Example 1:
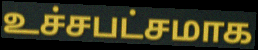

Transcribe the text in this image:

உச்சபட்சமாக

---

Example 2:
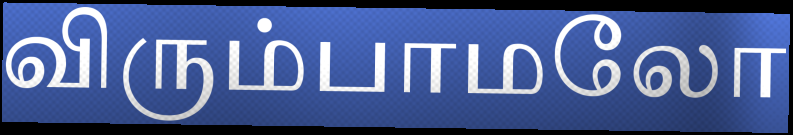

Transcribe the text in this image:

விரும்பாமலோ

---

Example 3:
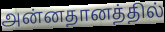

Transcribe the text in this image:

அன்னதானத்தில்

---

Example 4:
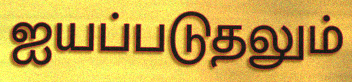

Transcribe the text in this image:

ஐயப்படுதலும்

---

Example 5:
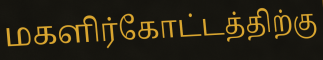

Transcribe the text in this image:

மகளிர்கோட்டத்திற்கு